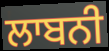
ਲਾਬਨੀ